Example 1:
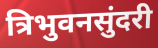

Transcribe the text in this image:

त्रिभुवनसुंदरी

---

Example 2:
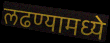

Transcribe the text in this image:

लढण्यामध्ये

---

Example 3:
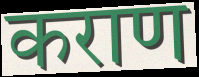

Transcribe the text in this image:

कराण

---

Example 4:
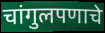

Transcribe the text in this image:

चांगुलपणाचे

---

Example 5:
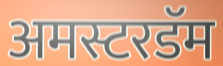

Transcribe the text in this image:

अमस्टरडॅम